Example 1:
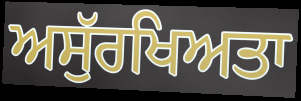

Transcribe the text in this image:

ਅਸੁੱਰਖਿਅਤਾ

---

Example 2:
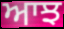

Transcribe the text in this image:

ਆਝ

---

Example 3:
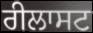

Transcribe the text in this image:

ਰੀਲਾਸਟ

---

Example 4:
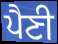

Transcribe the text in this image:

ਪੈਣੀ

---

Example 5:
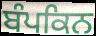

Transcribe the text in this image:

ਬੰਪਕਿਨ